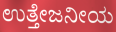
ಉತ್ತೇಜನೀಯ